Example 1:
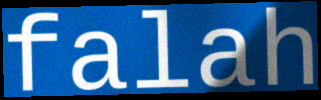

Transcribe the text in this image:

falah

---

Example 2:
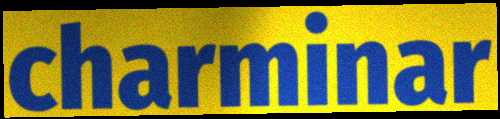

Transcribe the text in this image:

charminar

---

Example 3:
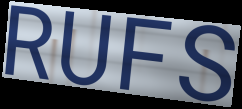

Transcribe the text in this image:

RUFS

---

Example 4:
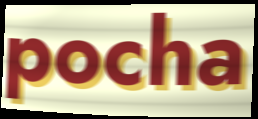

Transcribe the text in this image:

pocha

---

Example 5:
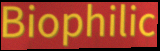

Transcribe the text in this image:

Biophilic